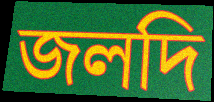
জলদি